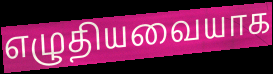
எழுதியவையாக